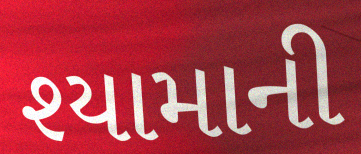
શ્યામાની